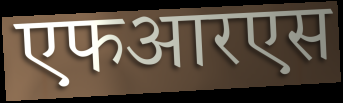
एफआरएस